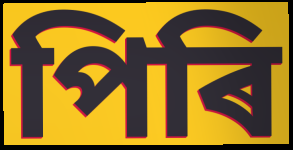
পিৰি